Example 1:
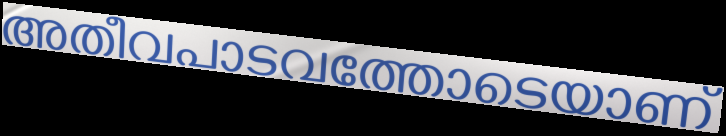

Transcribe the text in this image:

അതീവപാടവത്തോടെയാണ്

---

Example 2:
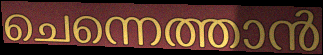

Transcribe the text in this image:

ചെന്നെത്താൻ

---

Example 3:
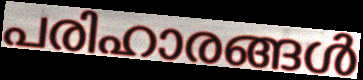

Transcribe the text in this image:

പരിഹാരങ്ങൾ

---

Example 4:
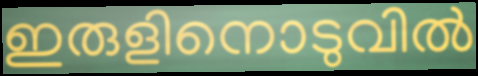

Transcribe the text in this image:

ഇരുളിനൊടുവിൽ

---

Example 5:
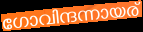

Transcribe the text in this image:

ഗോവിന്ദന്നായര്